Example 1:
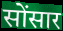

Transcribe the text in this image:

सोंसार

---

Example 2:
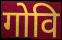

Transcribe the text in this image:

गोवि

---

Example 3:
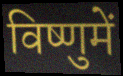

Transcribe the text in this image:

विष्णुमें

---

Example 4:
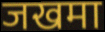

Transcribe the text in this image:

जखमा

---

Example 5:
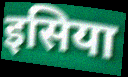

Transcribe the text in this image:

इसिया